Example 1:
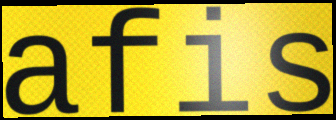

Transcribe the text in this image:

afis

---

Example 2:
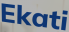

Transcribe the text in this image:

Ekati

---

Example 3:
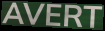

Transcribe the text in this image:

AVERT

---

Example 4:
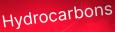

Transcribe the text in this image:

Hydrocarbons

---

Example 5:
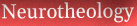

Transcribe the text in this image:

Neurotheology